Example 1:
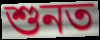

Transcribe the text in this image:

শুনত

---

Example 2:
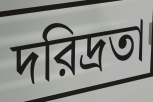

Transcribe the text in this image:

দরিদ্রতা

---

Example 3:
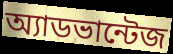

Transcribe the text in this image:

অ্যাডভান্টেজ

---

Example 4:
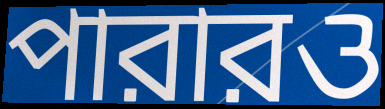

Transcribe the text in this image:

পারারও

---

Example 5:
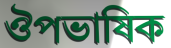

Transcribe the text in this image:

ঔপভাষিক